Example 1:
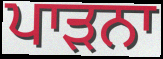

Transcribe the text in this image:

ਪਾੜਨਾ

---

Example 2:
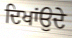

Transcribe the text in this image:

ਦਿਖਾਂਉਦੇ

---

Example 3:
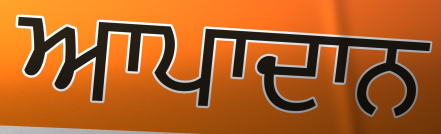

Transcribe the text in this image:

ਆਪਾਦਾਨ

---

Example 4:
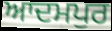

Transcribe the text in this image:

ਆਦਮਪੁਰ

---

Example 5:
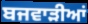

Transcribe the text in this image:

ਬਜਵਾੜੀਆਂ